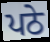
ਪਠੇ